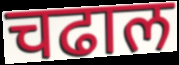
चढाल